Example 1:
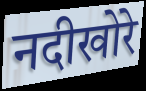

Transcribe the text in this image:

नदीखोरे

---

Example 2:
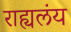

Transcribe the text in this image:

राह्यलंय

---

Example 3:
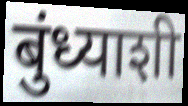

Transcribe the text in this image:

बुंध्याशी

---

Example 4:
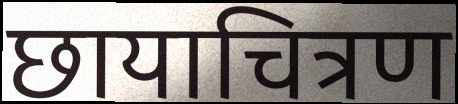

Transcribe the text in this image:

छायाचित्रण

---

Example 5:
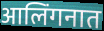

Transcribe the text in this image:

आलिंगनात